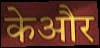
केऔर